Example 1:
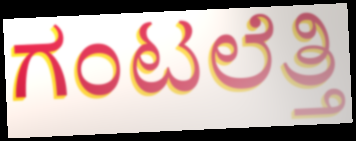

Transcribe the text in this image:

ಗಂಟಲೆತ್ತಿ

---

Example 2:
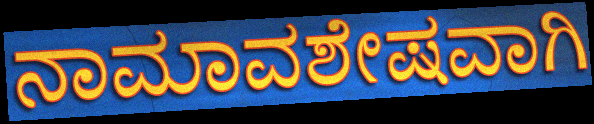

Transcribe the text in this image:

ನಾಮಾವಶೇಷವಾಗಿ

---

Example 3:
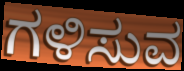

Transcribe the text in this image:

ಗಳಿಸುವ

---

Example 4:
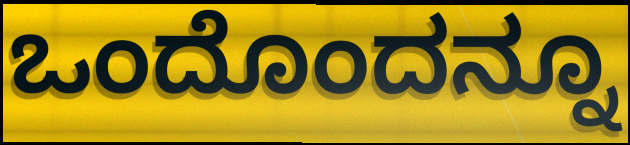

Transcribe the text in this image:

ಒಂದೊಂದನ್ನೂ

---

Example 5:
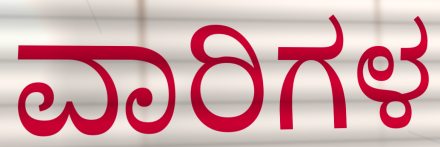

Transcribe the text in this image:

ವಾರಿಗಳ